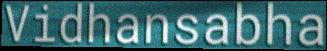
Vidhansabha